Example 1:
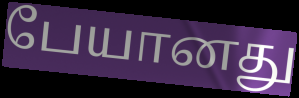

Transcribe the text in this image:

பேயானது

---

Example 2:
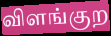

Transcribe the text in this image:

விளங்குற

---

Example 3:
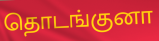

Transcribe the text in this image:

தொடங்குனா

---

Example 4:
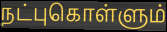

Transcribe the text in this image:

நட்புகொள்ளும்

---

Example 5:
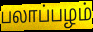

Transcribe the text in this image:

பலாப்பழம்